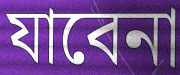
যাবেনা